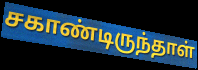
சகாண்டிருந்தாள்